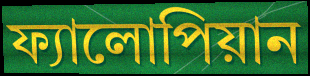
ফ্যালোপিয়ান